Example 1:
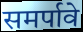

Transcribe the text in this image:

समर्पावे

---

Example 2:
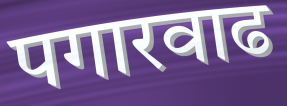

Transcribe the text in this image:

पगारवाढ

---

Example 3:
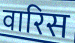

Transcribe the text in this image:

वारिस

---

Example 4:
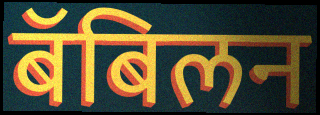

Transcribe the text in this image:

बॅबिलन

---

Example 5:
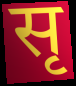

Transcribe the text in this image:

सृ